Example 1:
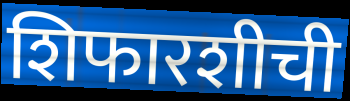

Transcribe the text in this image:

शिफारशीची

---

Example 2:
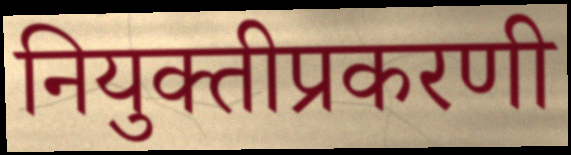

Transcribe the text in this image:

नियुक्तीप्रकरणी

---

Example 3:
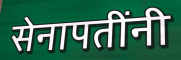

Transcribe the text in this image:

सेनापतींनी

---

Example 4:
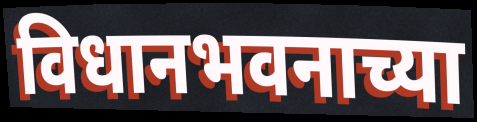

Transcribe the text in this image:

विधानभवनाच्या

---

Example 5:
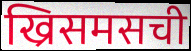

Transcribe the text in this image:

ख्रिसमसची